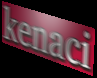
kenaci